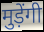
मुड़ेंगी